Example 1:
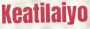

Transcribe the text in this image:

Keatilaiyo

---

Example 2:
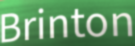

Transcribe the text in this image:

Brinton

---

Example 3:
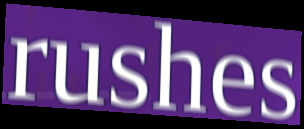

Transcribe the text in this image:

rushes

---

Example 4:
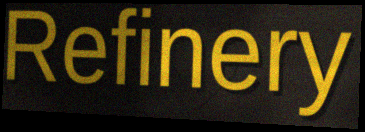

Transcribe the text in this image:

Refinery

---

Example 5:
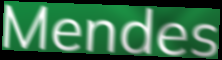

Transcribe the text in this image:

Mendes